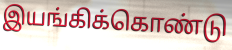
இயங்கிக்கொண்டு